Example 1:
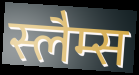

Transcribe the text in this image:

स्लैम्स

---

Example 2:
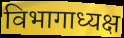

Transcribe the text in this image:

विभागाध्यक्ष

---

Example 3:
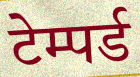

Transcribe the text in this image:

टेम्पर्ड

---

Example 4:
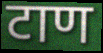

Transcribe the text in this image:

टाण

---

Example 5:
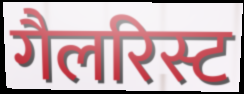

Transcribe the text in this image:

गैलरिस्ट